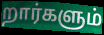
றார்களும்